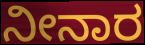
ನೀನಾರ